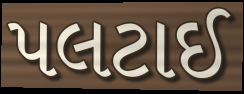
પલટાઈ